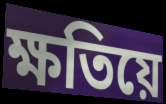
ক্ষতিয়ে